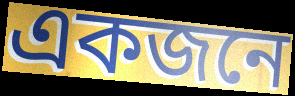
একজনে